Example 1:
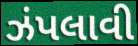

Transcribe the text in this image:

ઝંપલાવી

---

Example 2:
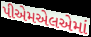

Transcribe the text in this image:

પીએમએલએમાં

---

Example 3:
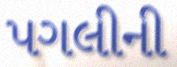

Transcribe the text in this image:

પગલીની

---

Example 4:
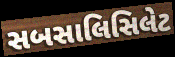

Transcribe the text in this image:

સબસાલિસિલેટ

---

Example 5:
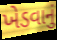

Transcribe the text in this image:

ખેડવાનું